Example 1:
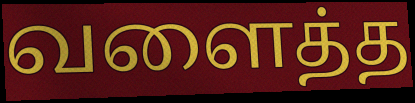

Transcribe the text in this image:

வளைத்த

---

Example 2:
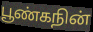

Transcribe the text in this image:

பூண்கநின்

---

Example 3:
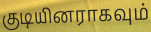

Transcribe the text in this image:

குடியினராகவும்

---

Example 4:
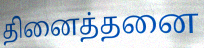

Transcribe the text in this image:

தினைத்தனை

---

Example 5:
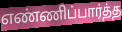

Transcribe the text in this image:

எண்ணிப்பார்த்த